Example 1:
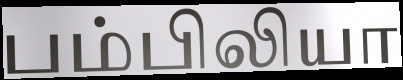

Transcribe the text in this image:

பம்பிலியா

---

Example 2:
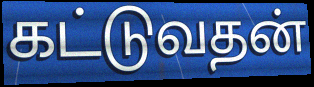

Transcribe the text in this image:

கட்டுவதன்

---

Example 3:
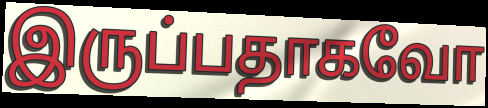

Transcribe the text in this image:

இருப்பதாகவோ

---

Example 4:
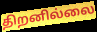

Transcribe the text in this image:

திறனில்லை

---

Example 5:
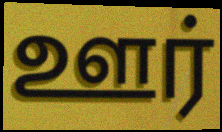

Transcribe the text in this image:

ஊர்